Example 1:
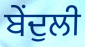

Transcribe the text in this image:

ਬੇਂਦੁਲੀ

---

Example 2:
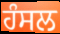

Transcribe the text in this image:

ਹੰਸਲ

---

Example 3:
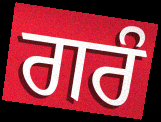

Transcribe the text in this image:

ਗਰੰ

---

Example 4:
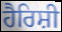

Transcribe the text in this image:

ਹੈਰਿਸ਼ੀ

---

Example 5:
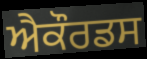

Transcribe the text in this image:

ਐਕੌਰਡਸ